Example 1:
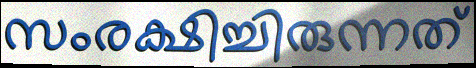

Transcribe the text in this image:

സംരക്ഷിച്ചിരുന്നത്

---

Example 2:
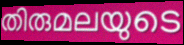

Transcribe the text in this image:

തിരുമലയുടെ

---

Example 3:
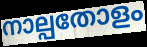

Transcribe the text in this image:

നാല്പതോളം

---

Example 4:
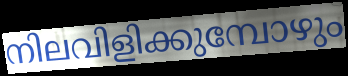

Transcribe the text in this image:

നിലവിളിക്കുമ്പോഴും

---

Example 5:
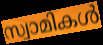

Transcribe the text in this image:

സ്വാമികൾ